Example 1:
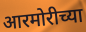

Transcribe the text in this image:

आरमोरीच्या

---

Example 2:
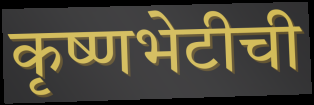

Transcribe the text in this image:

कृष्णभेटीची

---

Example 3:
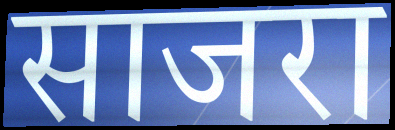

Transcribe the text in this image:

साजरा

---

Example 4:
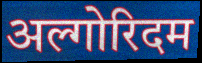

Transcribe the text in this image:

अल्गोरिदम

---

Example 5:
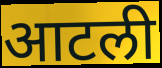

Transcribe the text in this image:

आटली